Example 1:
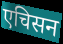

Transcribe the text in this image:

एचिसन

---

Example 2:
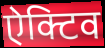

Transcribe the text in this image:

ऐक्टिव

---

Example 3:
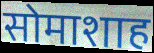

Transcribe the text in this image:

सोमाशाह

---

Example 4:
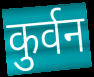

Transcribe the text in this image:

कुर्वन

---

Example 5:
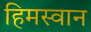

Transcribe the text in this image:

हिमस्वान